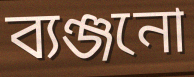
ব্যঞ্জনো